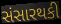
સંસારથકી